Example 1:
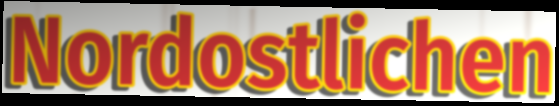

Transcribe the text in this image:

Nordostlichen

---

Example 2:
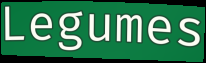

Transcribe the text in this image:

Legumes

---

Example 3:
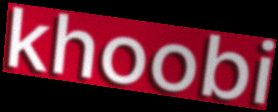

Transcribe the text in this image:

khoobi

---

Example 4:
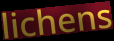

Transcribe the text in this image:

lichens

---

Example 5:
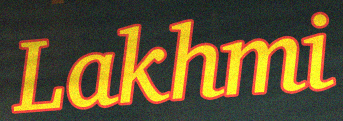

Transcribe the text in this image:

Lakhmi